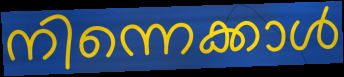
നിന്നെക്കാൾ